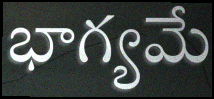
భాగ్యమే